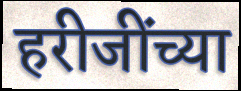
हरीजींच्या